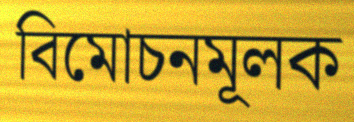
বিমোচনমূলক